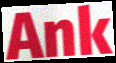
Ank